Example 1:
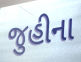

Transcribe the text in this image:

જુહીના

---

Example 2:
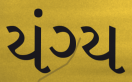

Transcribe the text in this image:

યંગ્ય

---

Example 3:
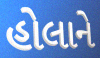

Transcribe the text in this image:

હોલાને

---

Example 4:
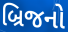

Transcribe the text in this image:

બ્રિજનો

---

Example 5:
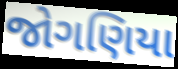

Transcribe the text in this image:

જોગણિયા